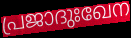
പ്രജാദുഃഖേന